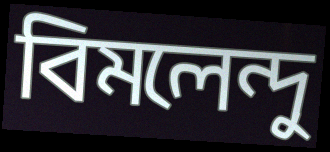
বিমলেন্দু